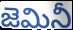
జెమినీ